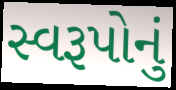
સ્વરૂપોનું